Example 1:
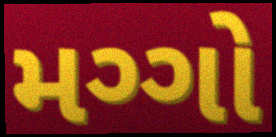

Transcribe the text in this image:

મગ્ગો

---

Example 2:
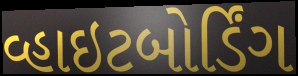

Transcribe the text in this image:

વ્હાઇટબોર્ડિંગ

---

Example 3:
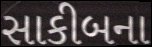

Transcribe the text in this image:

સાકીબના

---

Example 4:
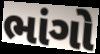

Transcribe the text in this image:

ભાંગો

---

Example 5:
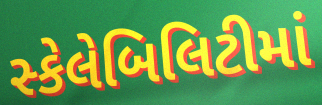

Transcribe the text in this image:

સ્કેલેબિલિટીમાં